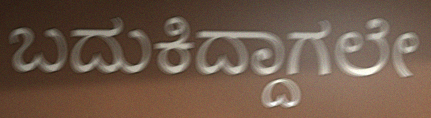
ಬದುಕಿದ್ದಾಗಲೇ